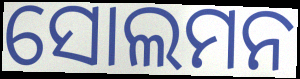
ସୋଲମନ